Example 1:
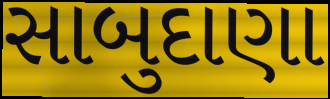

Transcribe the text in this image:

સાબુદાણા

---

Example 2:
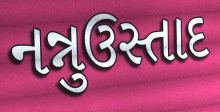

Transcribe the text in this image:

નન્નુઉસ્તાદ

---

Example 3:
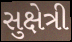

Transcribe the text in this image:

સુક્ષેત્રી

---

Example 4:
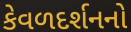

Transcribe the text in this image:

કેવળદર્શનનો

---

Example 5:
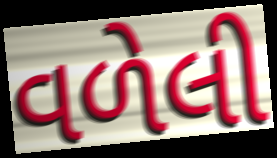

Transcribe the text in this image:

વળેલી